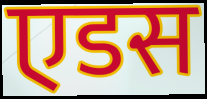
एडस